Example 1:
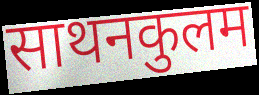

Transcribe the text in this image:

साथनकुलम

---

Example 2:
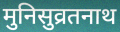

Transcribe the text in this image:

मुनिसुव्रतनाथ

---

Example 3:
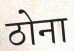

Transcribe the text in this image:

ठोना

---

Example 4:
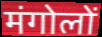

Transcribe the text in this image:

मंगोलों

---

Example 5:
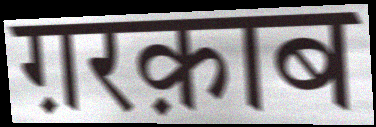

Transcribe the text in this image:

ग़रक़ाब